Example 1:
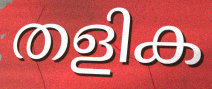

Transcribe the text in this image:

തളിക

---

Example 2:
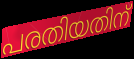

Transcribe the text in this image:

പരതിയതിന്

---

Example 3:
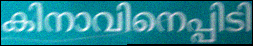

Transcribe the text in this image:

കിനാവിനെപ്പിടി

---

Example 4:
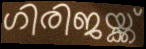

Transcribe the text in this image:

ഗിരിജയ്ക്ക്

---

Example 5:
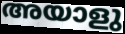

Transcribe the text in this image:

അയാളു